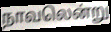
நாவலென்று